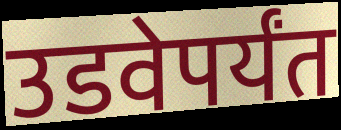
उडवेपर्यंत